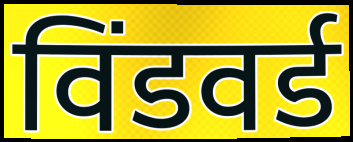
विंडवर्ड